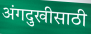
अंगदुखीसाठी